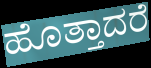
ಹೊತ್ತಾದರೆ